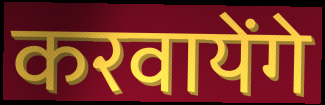
करवायेंगे